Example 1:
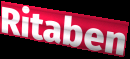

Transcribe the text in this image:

Ritaben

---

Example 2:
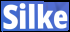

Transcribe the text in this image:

Silke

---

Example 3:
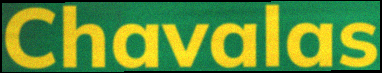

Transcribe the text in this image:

Chavalas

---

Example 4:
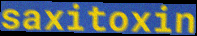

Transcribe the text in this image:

saxitoxin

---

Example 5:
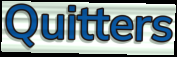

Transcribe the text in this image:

Quitters